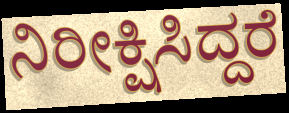
ನಿರೀಕ್ಷಿಸಿದ್ದರೆ